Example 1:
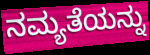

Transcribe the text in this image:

ನಮ್ಯತೆಯನ್ನು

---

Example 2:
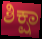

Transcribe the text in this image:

ಶಿಕ್ಷಾ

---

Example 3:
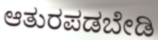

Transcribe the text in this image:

ಆತುರಪಡಬೇಡಿ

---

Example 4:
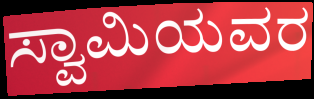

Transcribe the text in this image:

ಸ್ವಾಮಿಯವರ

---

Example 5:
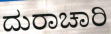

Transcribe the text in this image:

ದುರಾಚಾರಿ